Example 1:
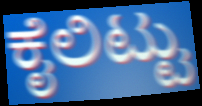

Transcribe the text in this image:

ಕೈಲಿಟ್ಟು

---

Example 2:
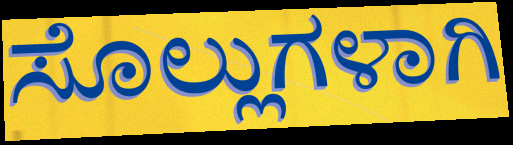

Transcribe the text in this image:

ಸೊಲ್ಲುಗಳಾಗಿ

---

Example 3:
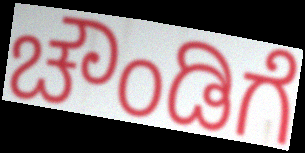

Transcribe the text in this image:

ಚೌಂಡಿಗೆ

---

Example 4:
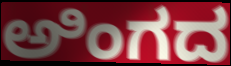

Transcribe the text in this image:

ಅಿಂಗದ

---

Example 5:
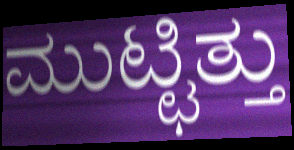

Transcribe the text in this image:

ಮುಟ್ಟಿತ್ತು